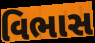
વિભાસ